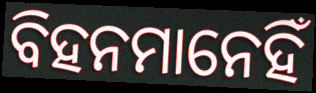
ବିହନମାନେହିଁ